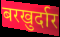
बरखुर्दार